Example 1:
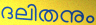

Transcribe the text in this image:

ദലിതനും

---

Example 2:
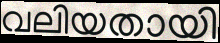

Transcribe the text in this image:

വലിയതായി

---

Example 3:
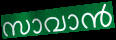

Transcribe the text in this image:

സാവാൻ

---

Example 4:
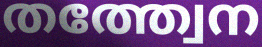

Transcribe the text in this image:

തത്ത്വേന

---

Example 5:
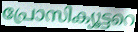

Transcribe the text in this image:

പ്രോസിക്യൂട്ടറെ